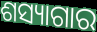
ଶସ୍ୟାଗାର